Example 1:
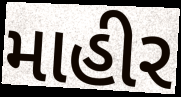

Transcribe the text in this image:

માહીર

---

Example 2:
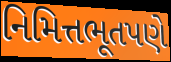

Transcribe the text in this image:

નિમિત્તભૂતપણે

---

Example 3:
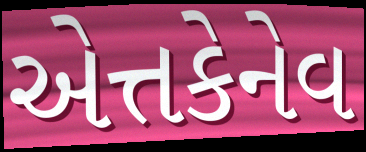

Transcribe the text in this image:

એત્તકેનેવ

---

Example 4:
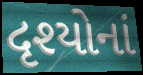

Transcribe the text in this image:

દૃશ્યોનાં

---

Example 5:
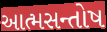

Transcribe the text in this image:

આત્મસન્તોષ